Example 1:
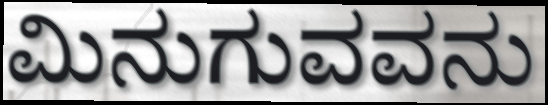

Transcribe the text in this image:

ಮಿನುಗುವವನು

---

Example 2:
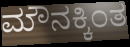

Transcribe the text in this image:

ಮೌನಕ್ಕಿಂತ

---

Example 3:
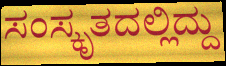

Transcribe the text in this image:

ಸಂಸ್ಕೃತದಲ್ಲಿದ್ದು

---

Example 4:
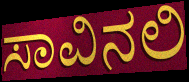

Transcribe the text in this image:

ಸಾವಿನಲಿ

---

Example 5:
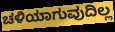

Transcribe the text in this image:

ಚಳಿಯಾಗುವುದಿಲ್ಲ